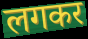
लगकर